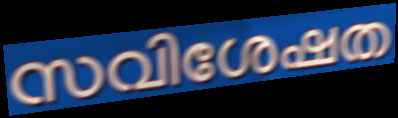
സവിശേഷത